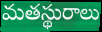
మతస్థురాలు